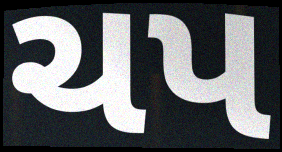
ચપ